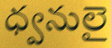
ధ్వనులై